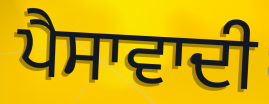
ਪੈਸਾਵਾਦੀ